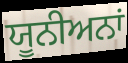
ਯੂਨੀਅਨਾਂ